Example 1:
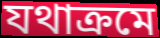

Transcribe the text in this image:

যথাক্ৰমে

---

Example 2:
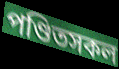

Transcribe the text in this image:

পণ্ডিতসকল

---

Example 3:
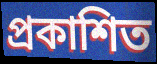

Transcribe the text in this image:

প্ৰকাশিত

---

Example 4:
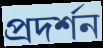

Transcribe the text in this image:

প্ৰদৰ্শন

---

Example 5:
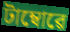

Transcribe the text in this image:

টাম্বোৱে